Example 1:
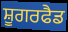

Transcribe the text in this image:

ਸ਼ੂਗਰਫੈਡ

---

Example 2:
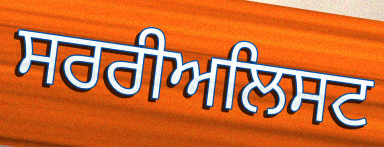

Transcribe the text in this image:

ਸਰਰੀਅਲਿਸਟ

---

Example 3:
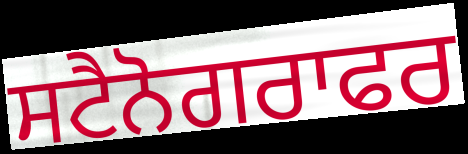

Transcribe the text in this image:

ਸਟੈਨੋਗਰਾਫਰ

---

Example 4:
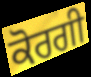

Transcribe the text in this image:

ਕੋਰਗੀ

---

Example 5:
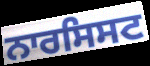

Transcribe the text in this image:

ਨਾਰਸਿਸਟ